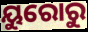
ୟୁରୋରୁ